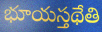
భూయస్తథేతి